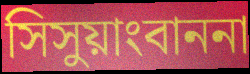
সিসুয়াংবাননা